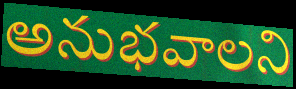
అనుభవాలని